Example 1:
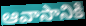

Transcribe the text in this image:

ఆవాసానికి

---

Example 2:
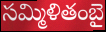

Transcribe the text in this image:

సమ్మిళితంబై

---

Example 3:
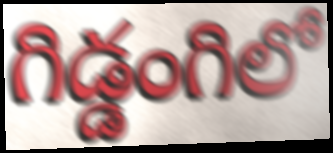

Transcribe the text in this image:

గిడ్డంగిలో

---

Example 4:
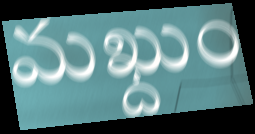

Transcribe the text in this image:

మఖ్దుం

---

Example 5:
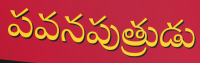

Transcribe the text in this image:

పవనపుత్రుడు